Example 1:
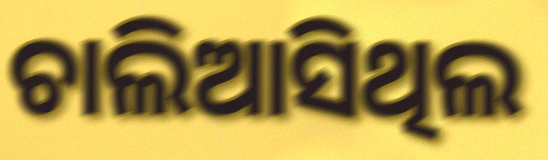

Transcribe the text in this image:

ଚାଲିଆସିଥିଲ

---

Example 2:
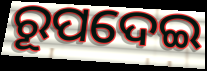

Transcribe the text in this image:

ରୂପଦେଇ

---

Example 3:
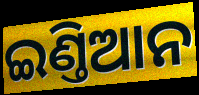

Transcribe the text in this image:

ଇଣ୍ତିଆନ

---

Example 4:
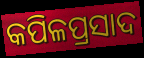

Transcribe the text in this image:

କପିଳପ୍ରସାଦ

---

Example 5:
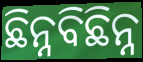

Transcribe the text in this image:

ଛିନ୍ନବିଛିନ୍ନ